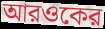
আরওকের